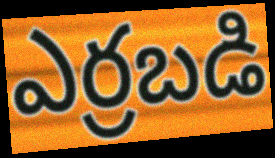
ఎర్రబడి